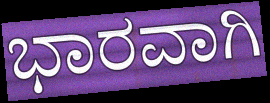
ಭಾರವಾಗಿ